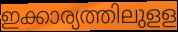
ഇക്കാര്യത്തിലുളള